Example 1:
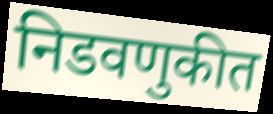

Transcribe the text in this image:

निडवणुकीत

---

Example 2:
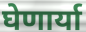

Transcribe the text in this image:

घेणार्या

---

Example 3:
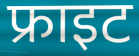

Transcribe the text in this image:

फ्राइट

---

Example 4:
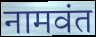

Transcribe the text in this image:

नामवंत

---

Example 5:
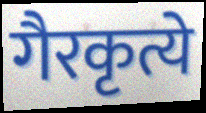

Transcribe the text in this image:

गैरकृत्ये